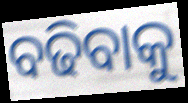
ବଢିବାକୁ